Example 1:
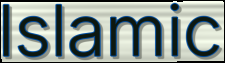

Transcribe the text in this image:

lslamic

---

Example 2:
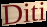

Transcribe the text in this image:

Diti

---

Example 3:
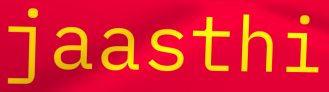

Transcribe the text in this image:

jaasthi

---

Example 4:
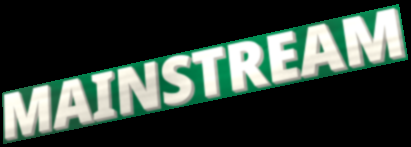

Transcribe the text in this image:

MAINSTREAM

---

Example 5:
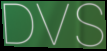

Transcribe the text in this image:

DVS